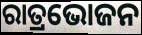
ରାତ୍ରଭୋଜନ